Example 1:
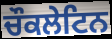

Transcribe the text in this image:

ਚੌਕਲੇਟਿਨ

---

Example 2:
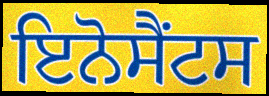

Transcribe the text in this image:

ਇਨੋਸੈਂਟਸ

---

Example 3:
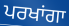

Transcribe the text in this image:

ਪਰਖਾਂਗਾ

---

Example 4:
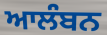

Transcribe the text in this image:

ਆਲੰਬਨ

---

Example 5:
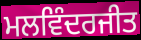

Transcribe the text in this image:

ਮਲਵਿੰਦਰਜੀਤ